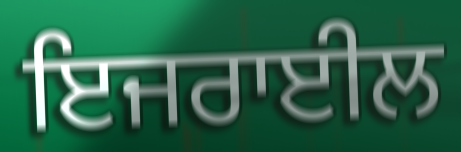
ਇਜਰਾਈਲ